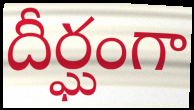
దీర్ఘంగా